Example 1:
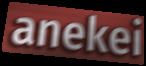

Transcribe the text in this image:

anekei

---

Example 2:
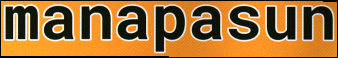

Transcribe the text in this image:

manapasun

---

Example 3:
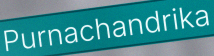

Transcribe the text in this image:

Purnachandrika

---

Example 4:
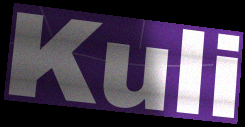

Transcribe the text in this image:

Kuli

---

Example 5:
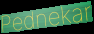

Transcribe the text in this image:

Pednekar